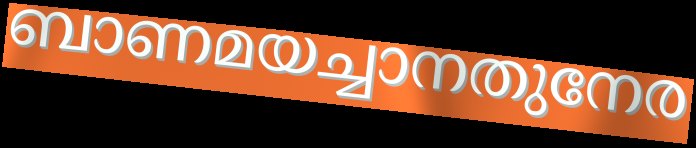
ബാണമയച്ചാനതുനേര